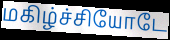
மகிழ்ச்சியோடே